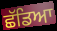
ਛੱਡਿਆ